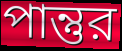
পান্তুর